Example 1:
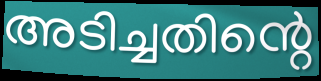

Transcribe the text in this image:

അടിച്ചതിന്റെ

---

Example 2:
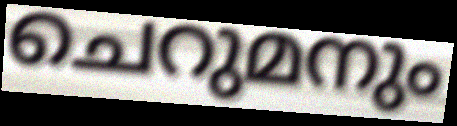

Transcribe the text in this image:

ചെറുമനും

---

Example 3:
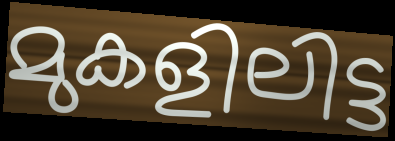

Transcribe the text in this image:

മുകളിലിട്ട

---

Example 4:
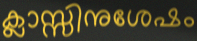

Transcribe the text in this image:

ക്ലാസ്സിനുശേഷം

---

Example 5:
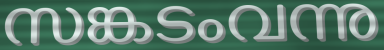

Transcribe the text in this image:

സങ്കടംവന്നു